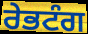
ਰੇਭਟੰਗ